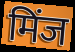
मिंज